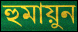
হুমায়ুন